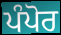
ਪੰਪੋਰ